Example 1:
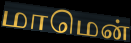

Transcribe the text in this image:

மாமென்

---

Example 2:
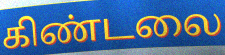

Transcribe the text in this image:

கிண்டலை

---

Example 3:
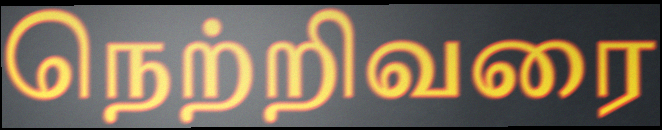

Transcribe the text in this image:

நெற்றிவரை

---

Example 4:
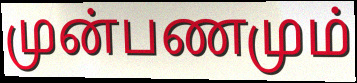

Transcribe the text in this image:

முன்பணமும்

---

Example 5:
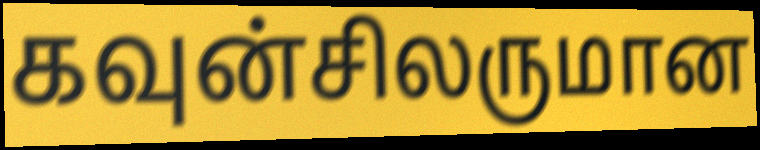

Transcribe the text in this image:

கவுன்சிலருமான